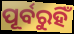
ପୂର୍ବରୁହିଁ